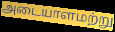
அடையாளமற்று